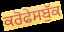
ਕਰੋਫੇਸਬੁੱਕ